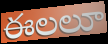
ఈలలూ